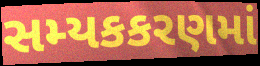
સમ્યકકરણમાં